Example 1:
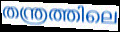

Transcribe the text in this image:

തന്ത്രത്തിലെ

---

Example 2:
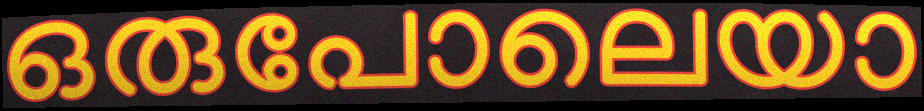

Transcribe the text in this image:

ഒരുപോലെയാ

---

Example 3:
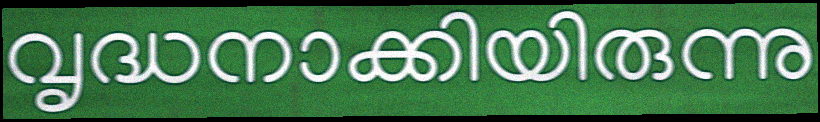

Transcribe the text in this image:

വൃദ്ധനാക്കിയിരുന്നു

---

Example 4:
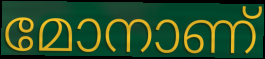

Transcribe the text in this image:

മോനാണ്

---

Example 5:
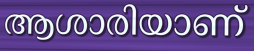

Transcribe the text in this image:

ആശാരിയാണ്